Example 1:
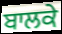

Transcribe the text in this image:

ਬਾਲਕੇ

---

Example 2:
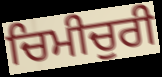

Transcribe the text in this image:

ਚਿਮੀਚੁਰੀ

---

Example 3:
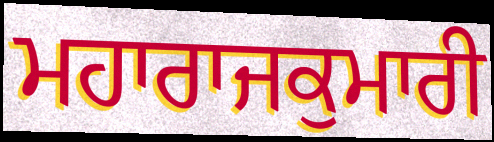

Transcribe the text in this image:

ਮਹਾਰਾਜਕੁਮਾਰੀ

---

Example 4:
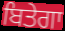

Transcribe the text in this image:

ਬਿਤੇਗਾ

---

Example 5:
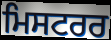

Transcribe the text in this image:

ਮਿਸਟਰਰ